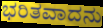
ಭರಿತವಾದನು